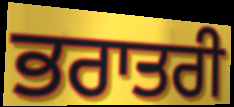
ਭਰਾਤਰੀ